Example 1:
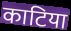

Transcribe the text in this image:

काटिया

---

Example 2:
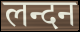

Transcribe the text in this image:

लन्दन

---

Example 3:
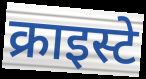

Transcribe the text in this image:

क्राइस्टे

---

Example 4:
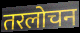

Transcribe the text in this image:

तरलोचन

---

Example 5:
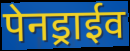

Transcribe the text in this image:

पेनड्राईव